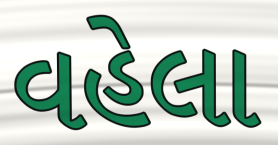
વહેલા